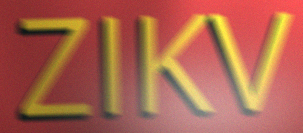
ZIKV